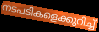
നടപടികളെക്കുറിച്ച്